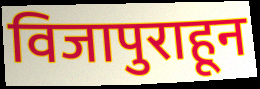
विजापुराहून